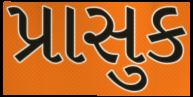
પ્રાસુક